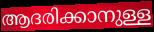
ആദരിക്കാനുള്ള